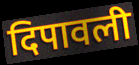
दिपावली